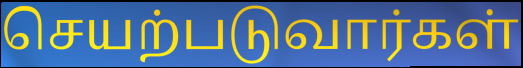
செயற்படுவார்கள்